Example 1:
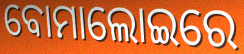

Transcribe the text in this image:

ବୋମାଲୋଇରେ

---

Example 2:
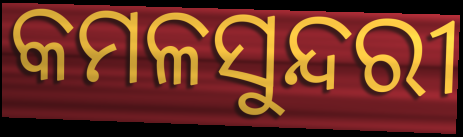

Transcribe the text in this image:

କମଳସୁନ୍ଦରୀ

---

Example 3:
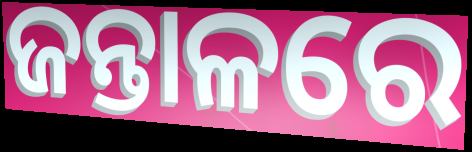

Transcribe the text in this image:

ଜନ୍ତାଳରେ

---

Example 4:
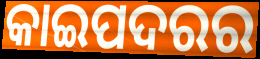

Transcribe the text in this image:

କାଇପଦରର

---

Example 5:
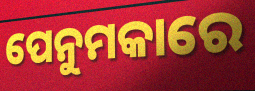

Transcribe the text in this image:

ପେନୁମକାରେ